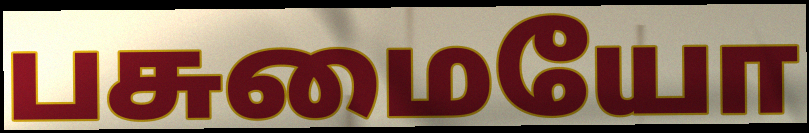
பசுமையோ